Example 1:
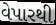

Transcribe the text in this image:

વેપારથી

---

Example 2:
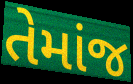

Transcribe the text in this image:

તેમાંજ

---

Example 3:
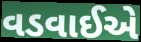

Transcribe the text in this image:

વડવાઈએ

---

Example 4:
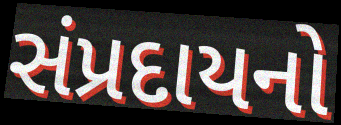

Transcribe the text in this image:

સંપ્રદાયનો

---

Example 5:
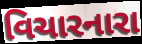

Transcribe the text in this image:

વિચારનારા